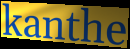
kanthe